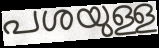
പശയുള്ള